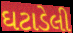
ઘટાડેલી